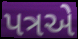
પત્રએ